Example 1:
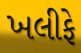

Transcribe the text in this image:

ખલીફે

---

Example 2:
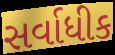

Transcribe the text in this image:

સર્વાધીક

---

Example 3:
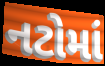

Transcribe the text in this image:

નટોમાં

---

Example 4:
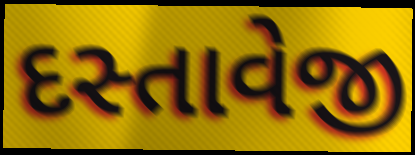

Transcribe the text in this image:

દસ્તાવેજી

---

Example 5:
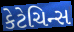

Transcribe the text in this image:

કેટેચિન્સ